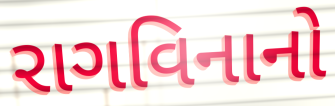
રાગવિનાનો